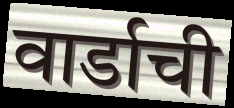
वार्डाची